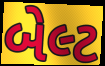
બેલ્ટ